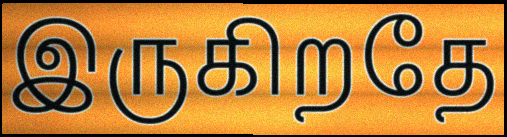
இருகிறதே